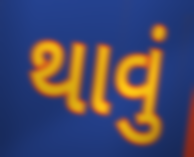
થાવું